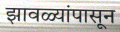
झावळ्यांपासून